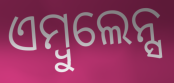
ଏମ୍ବୁଲେନ୍ସ